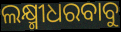
ଲକ୍ଷ୍ମୀଧରବାବୁ